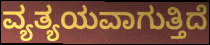
ವ್ಯತ್ಯಯವಾಗುತ್ತಿದೆ